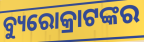
ବ୍ୟୁରୋକ୍ରାଟଙ୍କର